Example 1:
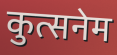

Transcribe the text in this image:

कुत्सनेम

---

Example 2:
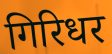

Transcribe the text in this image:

गिरिधर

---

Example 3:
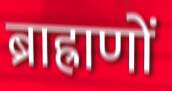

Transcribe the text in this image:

ब्राह्राणों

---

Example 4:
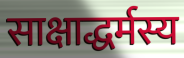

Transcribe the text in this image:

साक्षाद्धर्मस्य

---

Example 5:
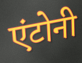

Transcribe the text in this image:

एंटोनी